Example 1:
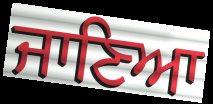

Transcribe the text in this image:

ਜਾਣਿਆ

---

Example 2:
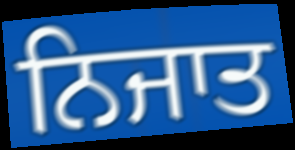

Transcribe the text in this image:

ਨਿਜਾਤ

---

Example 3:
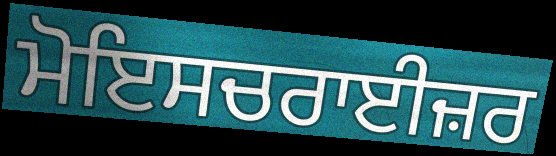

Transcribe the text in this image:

ਮੋਇਸਚਰਾਈਜ਼ਰ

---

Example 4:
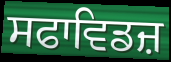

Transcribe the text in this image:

ਸਫਾਵਿਡਜ਼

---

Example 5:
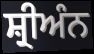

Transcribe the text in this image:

ਸ਼੍ਰੀਅੰਨ